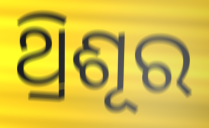
ଥ୍ରିଶୂର